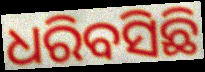
ଧରିବସିଛି